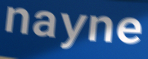
nayne